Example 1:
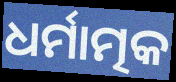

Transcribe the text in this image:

ଧର୍ମାତ୍ମକ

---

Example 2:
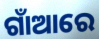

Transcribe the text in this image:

ଗାଁଆରେ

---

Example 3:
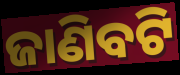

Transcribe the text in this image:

ଜାଣିବଟି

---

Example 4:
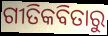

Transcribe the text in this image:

ଗୀତିକବିତାରୁ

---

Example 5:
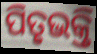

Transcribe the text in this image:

ପିତୃଭକ୍ତି